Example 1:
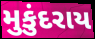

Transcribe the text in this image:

મુકુંદરાય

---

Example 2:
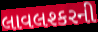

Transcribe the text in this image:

લાવલશ્કરની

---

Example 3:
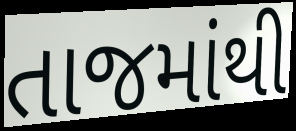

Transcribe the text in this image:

તાજમાંથી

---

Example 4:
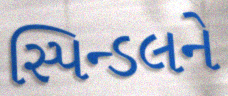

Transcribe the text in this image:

સ્પિન્ડલને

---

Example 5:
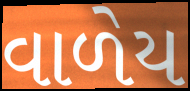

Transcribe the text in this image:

વાળેય